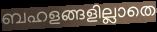
ബഹളങ്ങളില്ലാതെ